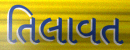
તિલાવત